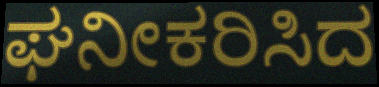
ಘನೀಕರಿಸಿದ